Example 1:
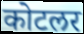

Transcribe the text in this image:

कोटलर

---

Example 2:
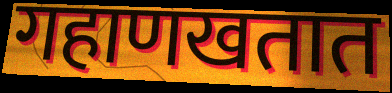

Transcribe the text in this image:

गहाणखतात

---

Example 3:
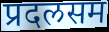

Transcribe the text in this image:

प्रदलसम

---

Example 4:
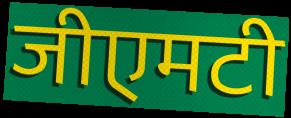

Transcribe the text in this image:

जीएमटी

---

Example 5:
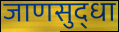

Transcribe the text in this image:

जाणसुद्धा